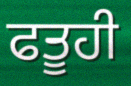
ਫਤੂਹੀ